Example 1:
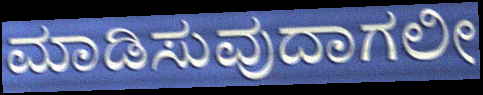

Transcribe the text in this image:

ಮಾಡಿಸುವುದಾಗಲೀ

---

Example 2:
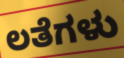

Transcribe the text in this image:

ಲತೆಗಳು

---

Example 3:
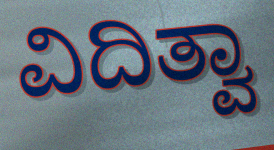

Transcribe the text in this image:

ವಿದಿತ್ವಾ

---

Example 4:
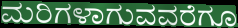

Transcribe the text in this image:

ಮರಿಗಳಾಗುವವರೆಗೂ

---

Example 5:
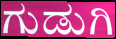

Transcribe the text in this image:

ಗುಡುಗಿ